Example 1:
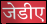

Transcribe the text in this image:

जेडीए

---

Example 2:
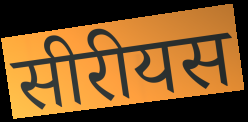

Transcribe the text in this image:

सीरीयस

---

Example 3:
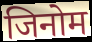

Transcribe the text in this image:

जिनोम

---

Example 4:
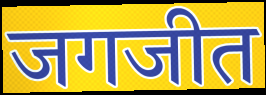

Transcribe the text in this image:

जगजीत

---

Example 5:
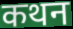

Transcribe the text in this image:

कथन